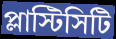
প্লাস্টিসিটি